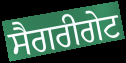
ਸੈਗਰੀਗੇਟ